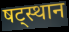
षट्स्थान